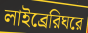
লাইব্রেরিঘরে